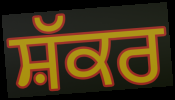
ਸ਼ੱਕਰ